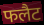
फलैट